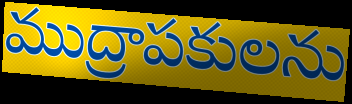
ముద్రాపకులను